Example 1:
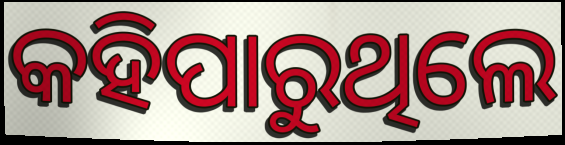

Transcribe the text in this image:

କହିପାରୁଥିଲେ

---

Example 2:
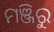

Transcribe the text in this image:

ମଞ୍ଜିରୁ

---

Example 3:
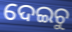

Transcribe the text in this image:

ଦେଇଚୁ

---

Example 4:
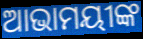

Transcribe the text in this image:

ଆଭାମୟୀଙ୍କ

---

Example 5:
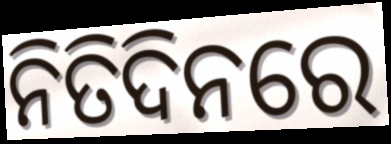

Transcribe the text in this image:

ନିତିଦିନରେ